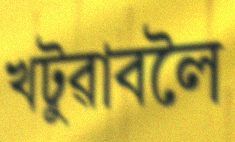
খটুৱাবলৈ